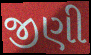
જીણી